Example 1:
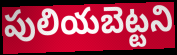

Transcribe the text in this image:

పులియబెట్టని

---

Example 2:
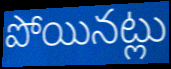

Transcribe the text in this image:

పోయినట్లు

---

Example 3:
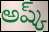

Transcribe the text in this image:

అష్క్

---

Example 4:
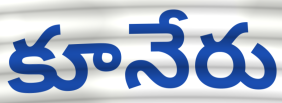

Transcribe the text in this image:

కూనేరు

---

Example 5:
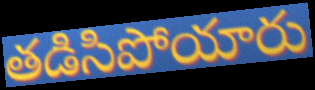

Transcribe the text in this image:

తడిసిపోయారు